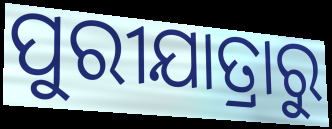
ପୁରୀଯାତ୍ରାରୁ